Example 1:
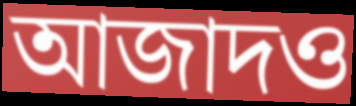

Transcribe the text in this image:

আজাদও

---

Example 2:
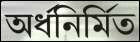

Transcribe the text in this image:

অর্ধনির্মিত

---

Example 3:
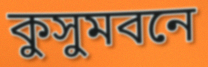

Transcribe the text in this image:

কুসুমবনে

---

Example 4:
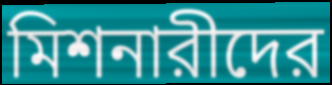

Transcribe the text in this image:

মিশনারীদের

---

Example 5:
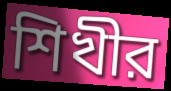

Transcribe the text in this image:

শিখীর